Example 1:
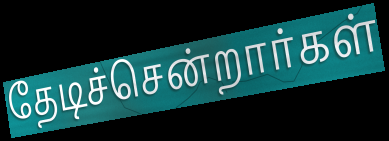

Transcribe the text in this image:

தேடிச்சென்றார்கள்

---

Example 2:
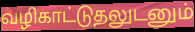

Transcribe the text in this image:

வழிகாட்டுதலுடனும்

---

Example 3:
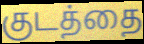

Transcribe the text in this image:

குடத்தை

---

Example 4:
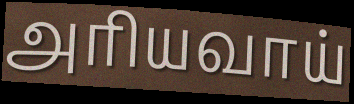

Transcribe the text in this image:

அரியவாய்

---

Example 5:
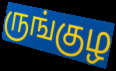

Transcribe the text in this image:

ருங்குழ